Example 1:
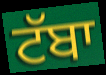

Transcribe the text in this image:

ਟੱਬਾ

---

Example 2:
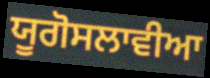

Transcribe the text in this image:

ਯੂਗੋਸਲਾਵੀਆ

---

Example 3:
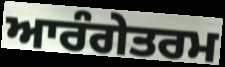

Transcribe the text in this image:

ਆਰੰਗੇਤਰਮ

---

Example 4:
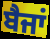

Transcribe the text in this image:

ਬੈਜਾਂ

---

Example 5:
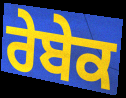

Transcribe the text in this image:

ਰੇਬੇਕ